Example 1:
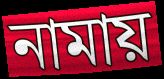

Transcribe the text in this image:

নামায়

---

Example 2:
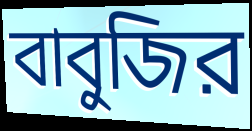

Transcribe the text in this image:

বাবুজির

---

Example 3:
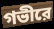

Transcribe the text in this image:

গভীরে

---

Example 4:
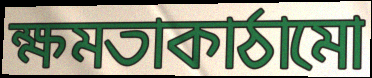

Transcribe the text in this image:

ক্ষমতাকাঠামো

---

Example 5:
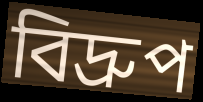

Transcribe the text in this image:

বিদ্রুপ